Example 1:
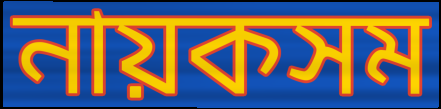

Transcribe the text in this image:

নায়কসম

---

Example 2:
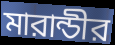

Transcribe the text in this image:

মারান্ডীর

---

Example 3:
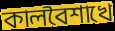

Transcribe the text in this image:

কালবৈশাখে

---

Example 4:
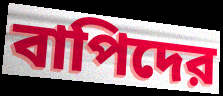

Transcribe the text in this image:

বাপিদের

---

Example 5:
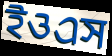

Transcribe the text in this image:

ইওএস